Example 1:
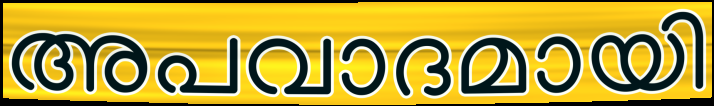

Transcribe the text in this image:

അപവാദമായി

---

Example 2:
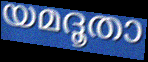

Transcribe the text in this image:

യമദൂതാ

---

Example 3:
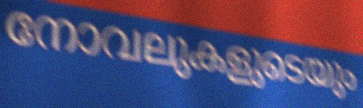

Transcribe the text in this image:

നോവലുകളുടെയും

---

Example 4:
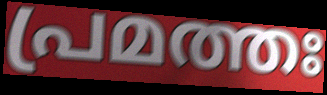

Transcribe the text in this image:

പ്രമത്തഃ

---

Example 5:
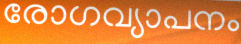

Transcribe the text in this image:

രോഗവ്യാപനം